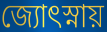
জ্যোৎস্নায়